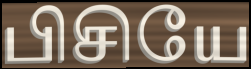
பிசியே